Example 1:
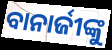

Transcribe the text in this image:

ବାନାର୍ଜୀଙ୍କୁ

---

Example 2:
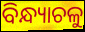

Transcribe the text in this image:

ବିନ୍ଧ୍ୟାଚଳୁ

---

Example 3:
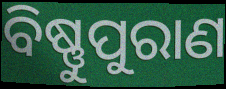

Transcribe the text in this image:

ବିଷ୍ଣୁପୁରାଣ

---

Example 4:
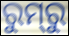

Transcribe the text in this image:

ରୁମ୍‌ରୁ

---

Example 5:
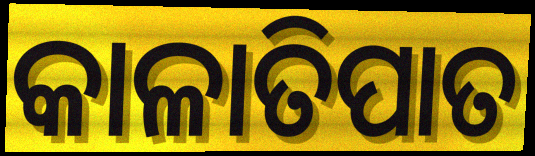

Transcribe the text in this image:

କାଳାତିପାତ